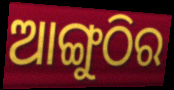
ଆଙ୍ଗୁଠିର